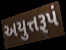
અયુત્તરૂપં